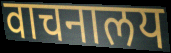
वाचनालय